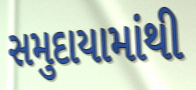
સમુદાયામાંથી